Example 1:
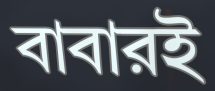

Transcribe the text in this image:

বাবারই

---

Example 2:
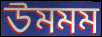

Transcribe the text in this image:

উমমম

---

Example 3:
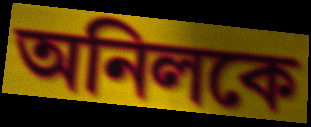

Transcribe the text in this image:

অনিলকে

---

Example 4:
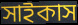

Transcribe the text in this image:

সাইকাস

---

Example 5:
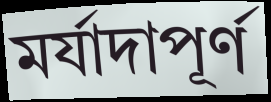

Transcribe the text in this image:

মর্যাদাপূর্ণ